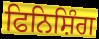
ਫਿਨਿਸ਼ਿੰਗ